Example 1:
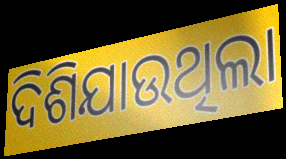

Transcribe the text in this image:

ଦିଶିଯାଉଥିଲା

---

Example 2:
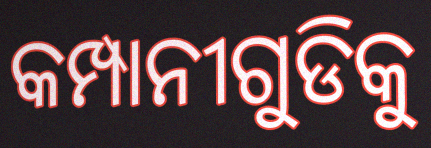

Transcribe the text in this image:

କମ୍ପାନୀଗୁଡିକୁ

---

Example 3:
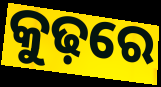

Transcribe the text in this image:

କୁଢ଼ରେ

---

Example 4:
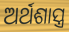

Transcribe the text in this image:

ଅର୍ଥଶାସ୍ତ୍ର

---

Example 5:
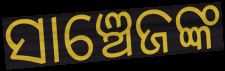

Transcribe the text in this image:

ସାଞ୍ଚେଜଙ୍କ